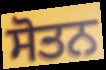
ਸੋਤਨ